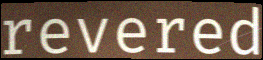
revered